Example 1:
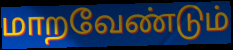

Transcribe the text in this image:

மாறவேண்டும்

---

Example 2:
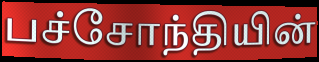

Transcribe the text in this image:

பச்சோந்தியின்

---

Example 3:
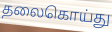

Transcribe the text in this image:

தலைகொய்து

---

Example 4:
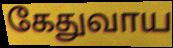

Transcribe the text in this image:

கேதுவாய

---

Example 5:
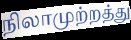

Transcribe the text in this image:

நிலாமுற்றத்து